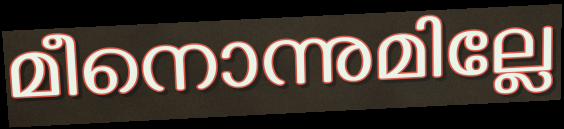
മീനൊന്നുമില്ലേ